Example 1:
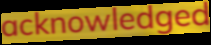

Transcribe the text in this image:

acknowledged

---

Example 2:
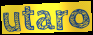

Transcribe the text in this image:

utaro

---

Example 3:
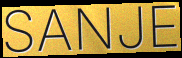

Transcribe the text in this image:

SANJE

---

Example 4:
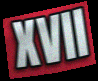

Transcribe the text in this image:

XVII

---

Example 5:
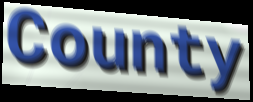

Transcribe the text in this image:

County